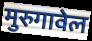
मुरुगावेल